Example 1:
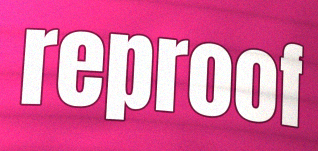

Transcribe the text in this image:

reproof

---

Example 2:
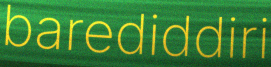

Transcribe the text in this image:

barediddiri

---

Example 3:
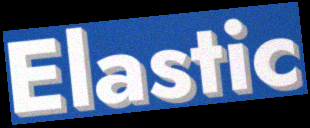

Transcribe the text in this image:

Elastic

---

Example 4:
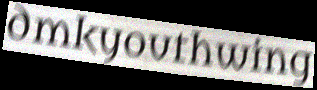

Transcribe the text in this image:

dmkyouthwing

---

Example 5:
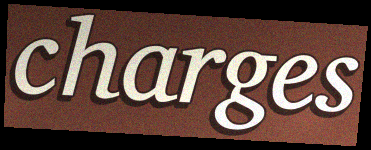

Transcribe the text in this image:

charges